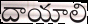
దాయాలి